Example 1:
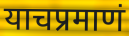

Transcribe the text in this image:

याचप्रमाणं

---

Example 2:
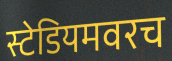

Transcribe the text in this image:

स्टेडियमवरच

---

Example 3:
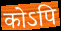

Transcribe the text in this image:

कोऽपि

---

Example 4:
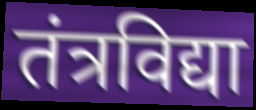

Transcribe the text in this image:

तंत्रविद्या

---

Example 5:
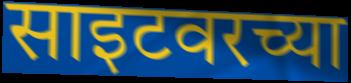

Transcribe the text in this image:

साइटवरच्या